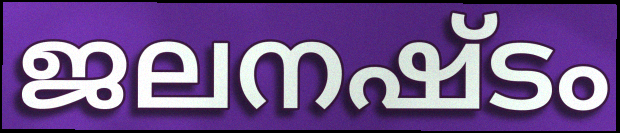
ജലനഷ്ടം